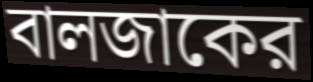
বালজাকের